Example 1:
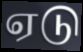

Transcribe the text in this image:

ஏடு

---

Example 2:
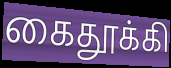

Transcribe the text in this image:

கைதூக்கி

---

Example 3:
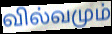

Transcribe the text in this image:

வில்வமும்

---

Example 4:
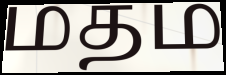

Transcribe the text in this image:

மதம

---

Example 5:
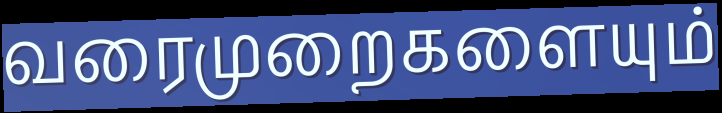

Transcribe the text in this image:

வரைமுறைகளையும்